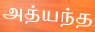
அத்யந்த